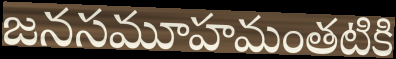
జనసమూహమంతటికి